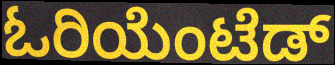
ಓರಿಯೆಂಟೆಡ್